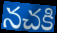
నచకి